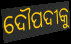
ଦୌପଦୀକୁ